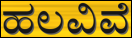
ಹಲವಿವೆ